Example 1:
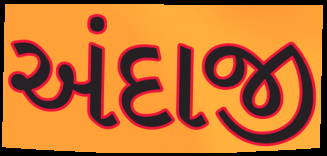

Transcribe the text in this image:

અંદાજી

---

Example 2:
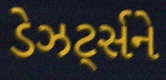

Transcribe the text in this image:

ડેઝર્ટ્સને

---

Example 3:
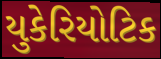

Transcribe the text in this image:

યુકેરિયોટિક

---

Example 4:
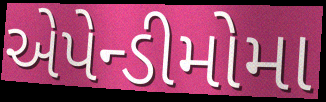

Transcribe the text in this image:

એપેન્ડીમોમા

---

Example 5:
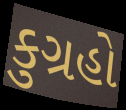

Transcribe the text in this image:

કુગ્રહો